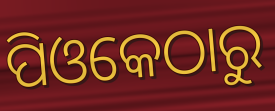
ପିଓକେଠାରୁ